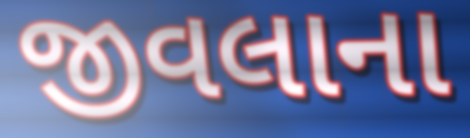
જીવલાના